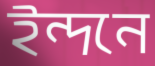
ইন্দনে